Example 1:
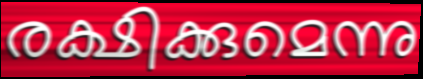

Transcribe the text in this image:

രക്ഷിക്കുമെന്നു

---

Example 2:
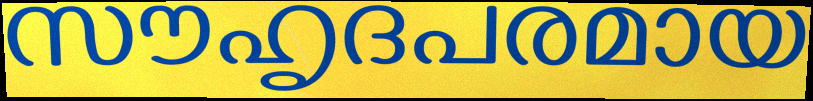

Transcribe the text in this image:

സൗഹൃദപരമായ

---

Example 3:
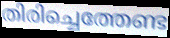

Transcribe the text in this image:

തിരിച്ചെത്തേണ്ട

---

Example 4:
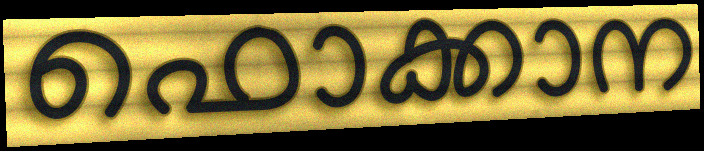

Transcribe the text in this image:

ഫൊക്കാന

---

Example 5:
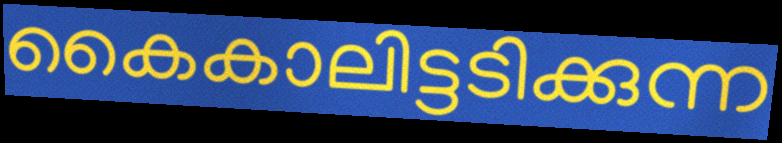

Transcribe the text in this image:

കൈകാലിട്ടടിക്കുന്ന